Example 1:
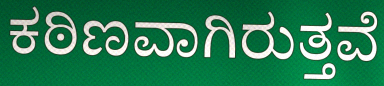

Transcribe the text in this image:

ಕಠಿಣವಾಗಿರುತ್ತವೆ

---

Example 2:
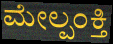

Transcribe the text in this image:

ಮೇಲ್ಪಂಕ್ತಿ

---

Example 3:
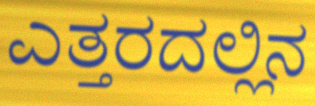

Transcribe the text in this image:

ಎತ್ತರದಲ್ಲಿನ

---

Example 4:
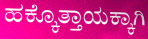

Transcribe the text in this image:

ಹಕ್ಕೊತ್ತಾಯಕ್ಕಾಗಿ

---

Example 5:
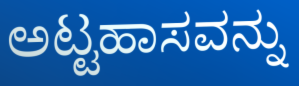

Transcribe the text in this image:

ಅಟ್ಟಹಾಸವನ್ನು